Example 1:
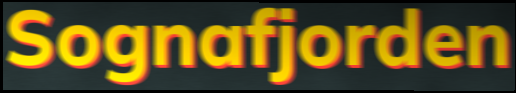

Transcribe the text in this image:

Sognafjorden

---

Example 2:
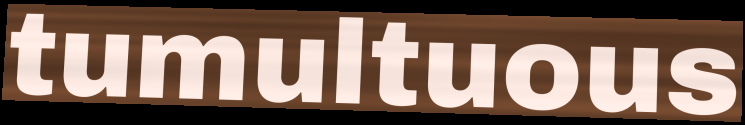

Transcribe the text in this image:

tumultuous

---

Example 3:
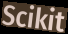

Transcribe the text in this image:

Scikit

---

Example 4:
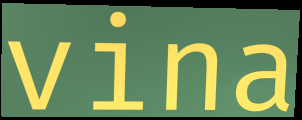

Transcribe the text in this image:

vina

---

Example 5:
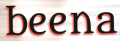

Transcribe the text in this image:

beena